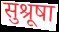
सुश्रूषा